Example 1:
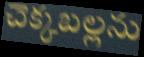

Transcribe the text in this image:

చెక్కబల్లను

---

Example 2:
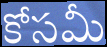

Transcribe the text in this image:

కోసమీ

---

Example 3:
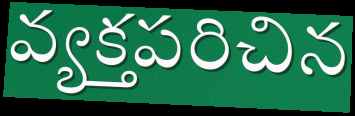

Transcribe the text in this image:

వ్యక్తపరిచిన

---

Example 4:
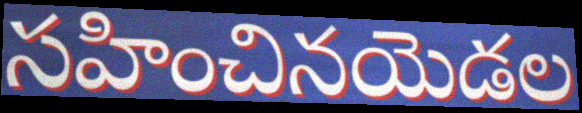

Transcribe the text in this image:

సహించినయెడల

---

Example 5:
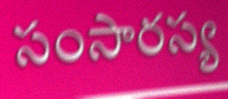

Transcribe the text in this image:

సంసారస్య